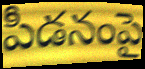
పీడనంపై